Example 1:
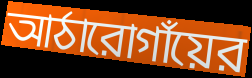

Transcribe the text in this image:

আঠারোগাঁয়ের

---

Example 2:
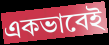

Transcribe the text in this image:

একভাবেই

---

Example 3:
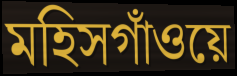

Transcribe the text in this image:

মহিসগাঁওয়ে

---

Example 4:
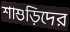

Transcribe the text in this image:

শাশুড়িদের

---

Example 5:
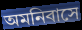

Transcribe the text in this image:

অমনিবাসে